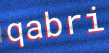
qabri